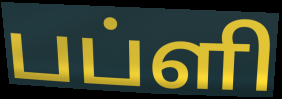
பப்ளி